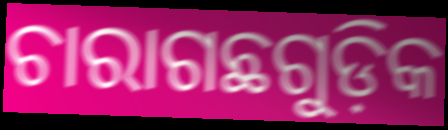
ଚାରାଗଛଗୁଡ଼ିକ